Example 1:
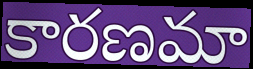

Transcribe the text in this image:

కారణమా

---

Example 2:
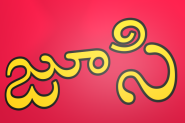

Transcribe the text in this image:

జూసి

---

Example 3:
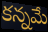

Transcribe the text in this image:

కన్నమే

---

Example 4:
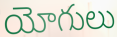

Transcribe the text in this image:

యోగులు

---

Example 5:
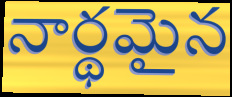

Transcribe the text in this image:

నార్థమైన